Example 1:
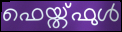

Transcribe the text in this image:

ഫെയ്ത്ഫുൾ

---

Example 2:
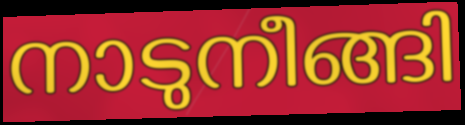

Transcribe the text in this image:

നാടുനീങ്ങി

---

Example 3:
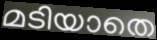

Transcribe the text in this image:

മടിയാതെ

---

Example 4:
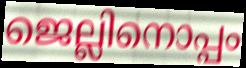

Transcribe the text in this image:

ജെല്ലിനൊപ്പം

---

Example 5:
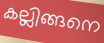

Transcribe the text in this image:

കല്ലിങ്ങനെ